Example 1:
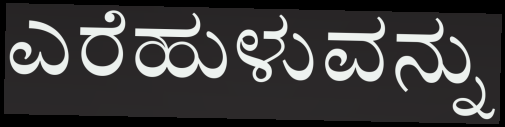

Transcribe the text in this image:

ಎರೆಹುಳುವನ್ನು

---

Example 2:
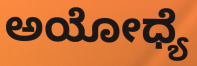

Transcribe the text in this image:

ಅಯೋಧ್ಯೆ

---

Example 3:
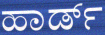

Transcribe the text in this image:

ಹಾರ್ಡ್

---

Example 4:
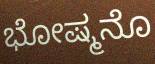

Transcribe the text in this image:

ಭೋಷ್ಮನೊ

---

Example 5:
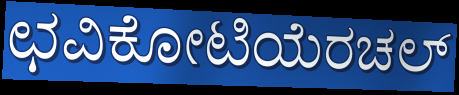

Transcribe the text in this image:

ಛವಿಕೋಟಿಯೆರಚಲ್